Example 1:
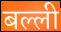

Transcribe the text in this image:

बल्ली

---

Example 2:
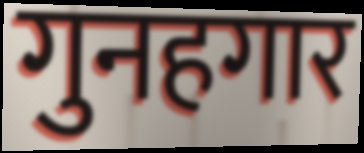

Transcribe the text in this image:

गुनहगार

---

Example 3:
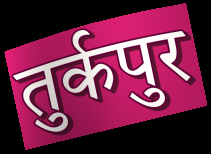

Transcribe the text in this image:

तुर्कपुर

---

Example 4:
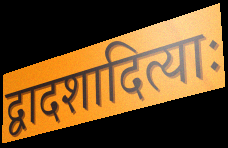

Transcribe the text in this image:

द्वादशादित्याः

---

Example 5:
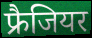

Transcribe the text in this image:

फ्रैजियर